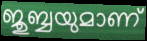
ജുബ്ബയുമാണ്